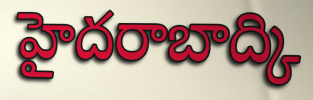
హైదరాబాద్కి